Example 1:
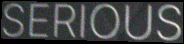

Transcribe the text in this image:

SERIOUS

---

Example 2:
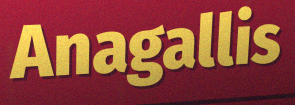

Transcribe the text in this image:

Anagallis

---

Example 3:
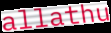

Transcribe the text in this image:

allathu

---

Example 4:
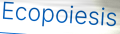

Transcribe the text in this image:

Ecopoiesis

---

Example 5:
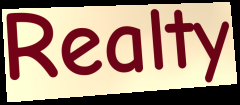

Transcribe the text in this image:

Realty